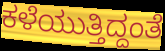
ಕಳೆಯುತ್ತಿದ್ದಂತೆ